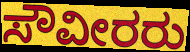
ಸೌವೀರರು